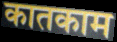
कातकाम